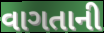
વાગતાની